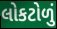
લોકટોળું